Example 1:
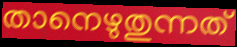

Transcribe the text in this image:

താനെഴുതുന്നത്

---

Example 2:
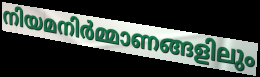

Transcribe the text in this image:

നിയമനിർമ്മാണങ്ങളിലും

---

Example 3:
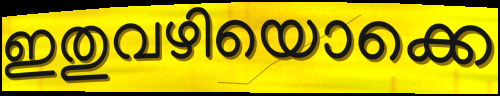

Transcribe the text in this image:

ഇതുവഴിയൊക്കെ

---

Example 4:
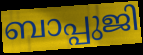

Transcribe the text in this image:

ബാപ്പുജി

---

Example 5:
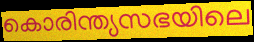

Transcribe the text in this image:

കൊരിന്ത്യസഭയിലെ